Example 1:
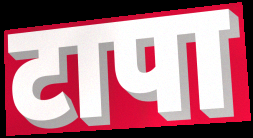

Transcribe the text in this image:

टापा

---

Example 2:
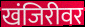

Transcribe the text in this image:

खंजिरीवर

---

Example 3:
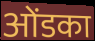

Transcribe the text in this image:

ओंडका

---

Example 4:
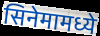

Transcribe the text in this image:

सिनेमामध्ये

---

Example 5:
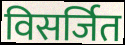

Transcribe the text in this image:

विसर्जित